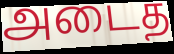
அடைத